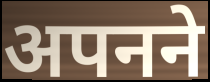
अपनने